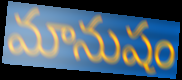
మానుషం